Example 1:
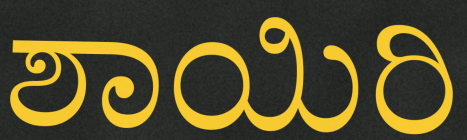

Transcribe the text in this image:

ಶಾಯಿರಿ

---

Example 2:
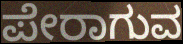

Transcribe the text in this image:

ಪೇರಾಗುವ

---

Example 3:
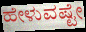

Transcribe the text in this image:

ಹೇಳುವಷ್ಟೇ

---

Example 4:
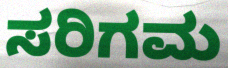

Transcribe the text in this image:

ಸರಿಗಮ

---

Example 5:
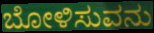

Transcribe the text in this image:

ಬೋಳಿಸುವನು